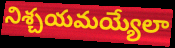
నిశ్చయమయ్యేలా